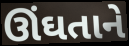
ઊંઘતાને